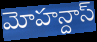
మోహన్దాస్